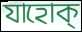
যাহোক্